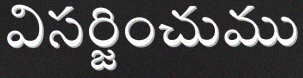
విసర్జించుము